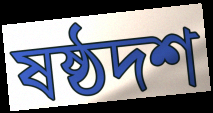
ষষ্ঠদশ